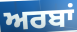
ਅਰਬਾਂ